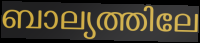
ബാല്യത്തിലേ